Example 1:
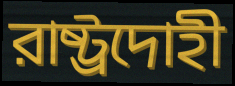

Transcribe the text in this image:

রাষ্ট্রদোহী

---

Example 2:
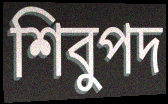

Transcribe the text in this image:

শিবুপদ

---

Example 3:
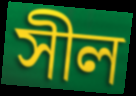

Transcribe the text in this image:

সীল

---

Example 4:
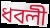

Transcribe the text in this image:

ধবলী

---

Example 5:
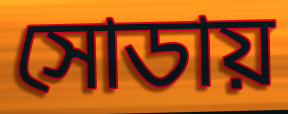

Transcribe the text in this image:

সোডায়